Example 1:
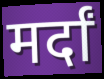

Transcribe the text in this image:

मर्दां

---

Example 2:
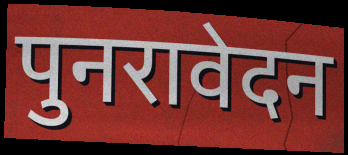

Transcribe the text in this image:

पुनरावेदन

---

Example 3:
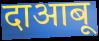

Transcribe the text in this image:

दाआबू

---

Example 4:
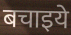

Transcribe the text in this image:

बचाइये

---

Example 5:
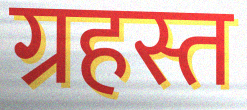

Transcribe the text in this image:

ग्रहस्त